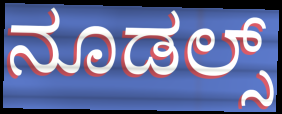
ನೂಡಲ್ಸ್